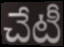
చేటీ